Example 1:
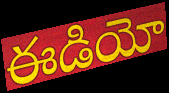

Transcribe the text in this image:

ఈడియో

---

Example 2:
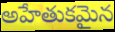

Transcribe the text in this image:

అహేతుకమైన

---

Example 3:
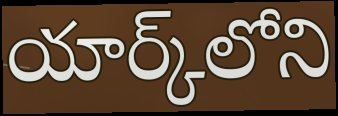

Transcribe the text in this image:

యార్క్‌లోని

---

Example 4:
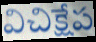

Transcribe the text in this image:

విచిక్షేప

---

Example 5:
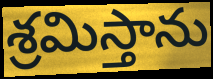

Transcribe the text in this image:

శ్రమిస్తాను